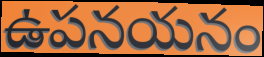
ఉపనయనం